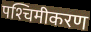
पश्चिमीकरण